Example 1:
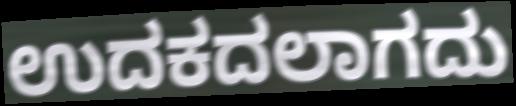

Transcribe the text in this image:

ಉದಕದಲಾಗದು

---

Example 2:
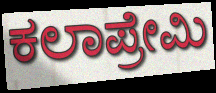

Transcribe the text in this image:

ಕಲಾಪ್ರೇಮಿ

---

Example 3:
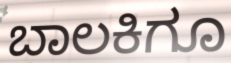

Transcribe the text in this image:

ಬಾಲಕಿಗೂ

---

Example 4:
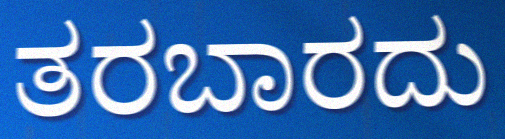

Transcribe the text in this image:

ತರಬಾರದು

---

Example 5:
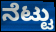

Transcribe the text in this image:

ನೆಟ್ಟು